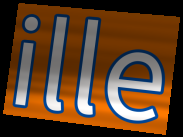
ille